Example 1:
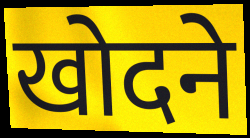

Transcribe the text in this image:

खोदने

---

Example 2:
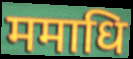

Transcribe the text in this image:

ममाधि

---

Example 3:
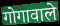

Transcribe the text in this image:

गोगावाले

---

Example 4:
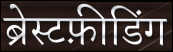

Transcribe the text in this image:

ब्रेस्टफ़ीडिंग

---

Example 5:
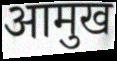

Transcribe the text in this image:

आमुख